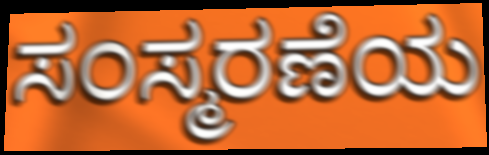
ಸಂಸ್ಮರಣೆಯ